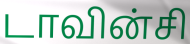
டாவின்சி